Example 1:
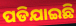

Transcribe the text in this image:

ପଡିଯାଇଛି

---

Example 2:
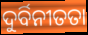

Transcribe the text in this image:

ଦୁର୍ବିନୀତତା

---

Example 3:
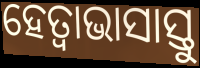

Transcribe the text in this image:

ହେତ୍ଵାଭାସାସ୍ତୁ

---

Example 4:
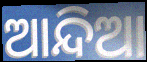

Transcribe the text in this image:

ଆନ୍ଦିଆ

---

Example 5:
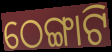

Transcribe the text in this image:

ଠେଙ୍ଗାଟି